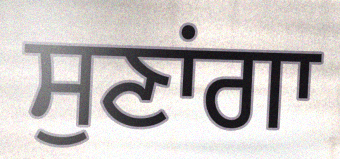
ਸੁਣਾਂਗਾ